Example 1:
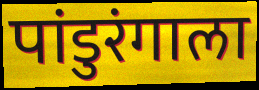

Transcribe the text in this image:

पांडुरंगाला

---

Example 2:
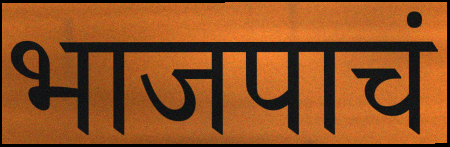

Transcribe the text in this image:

भाजपाचं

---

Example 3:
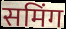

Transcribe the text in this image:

समिंग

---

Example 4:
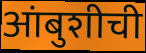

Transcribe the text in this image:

आंबुशीची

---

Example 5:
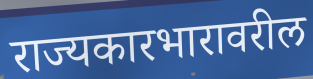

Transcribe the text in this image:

राज्यकारभारावरील